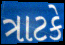
ત્રાટકે